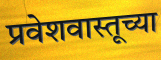
प्रवेशवास्तूच्या